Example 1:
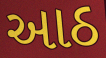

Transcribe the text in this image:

આઠ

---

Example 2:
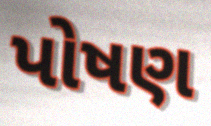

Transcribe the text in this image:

પોષણ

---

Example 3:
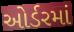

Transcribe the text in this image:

ઓર્ડરમાં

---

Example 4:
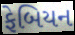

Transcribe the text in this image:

ફેબિયન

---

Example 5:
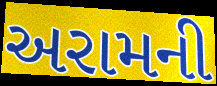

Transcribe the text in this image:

અરામની